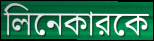
লিনেকারকে